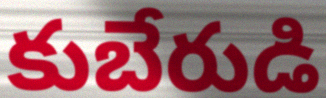
కుబేరుడి